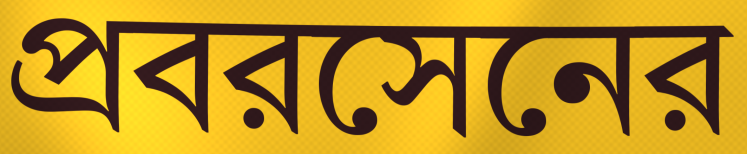
প্রবরসেনের